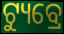
ଟ୍ୟୁବ୍ରେ